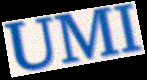
UMI